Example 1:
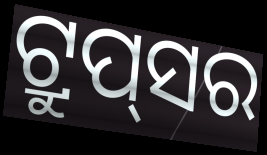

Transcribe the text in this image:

ଟ୍ରୁପ୍‌ସର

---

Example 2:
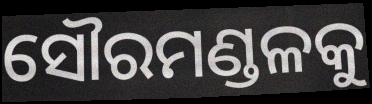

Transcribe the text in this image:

ସୌରମଣ୍ଡଳକୁ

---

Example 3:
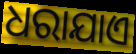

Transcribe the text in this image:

ଧରାଯାଏ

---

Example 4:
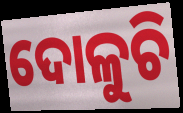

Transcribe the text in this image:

ଦୋଳୁଚି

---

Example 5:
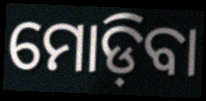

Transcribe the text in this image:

ମୋଡ଼ିବା